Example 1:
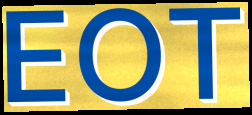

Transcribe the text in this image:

EOT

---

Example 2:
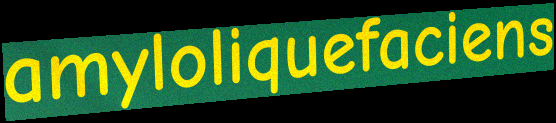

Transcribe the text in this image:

amyloliquefaciens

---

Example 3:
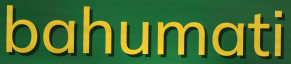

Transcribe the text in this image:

bahumati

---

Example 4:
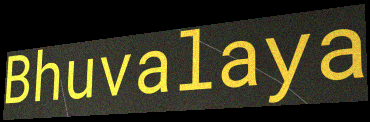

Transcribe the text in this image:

Bhuvalaya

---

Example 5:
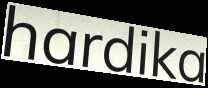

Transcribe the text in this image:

hardika